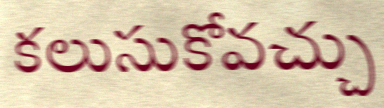
కలుసుకోవచ్చు